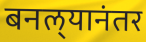
बनल्यानंतर